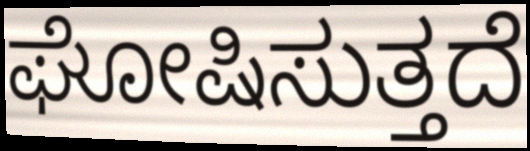
ಘೋಷಿಸುತ್ತದೆ